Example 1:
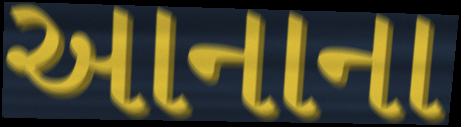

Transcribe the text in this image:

આનાના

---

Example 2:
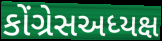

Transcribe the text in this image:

કોંગ્રેસઅધ્યક્ષ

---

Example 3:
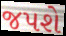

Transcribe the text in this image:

જપશે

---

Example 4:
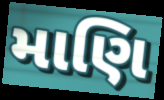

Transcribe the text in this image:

માણિ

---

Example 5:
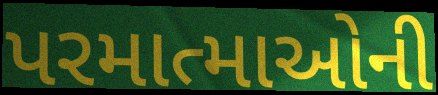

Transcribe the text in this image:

પરમાત્માઓની